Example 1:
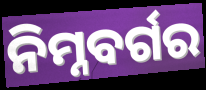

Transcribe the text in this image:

ନିମ୍ନବର୍ଗର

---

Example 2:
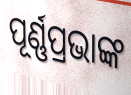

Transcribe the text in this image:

ପୂର୍ଣ୍ଣପ୍ରଭାଙ୍କ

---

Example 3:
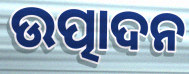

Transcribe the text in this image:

ଉତ୍ପାଦନ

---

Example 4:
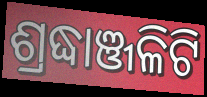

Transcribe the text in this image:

ଶ୍ରଦ୍ଧାଞ୍ଜଳିଟି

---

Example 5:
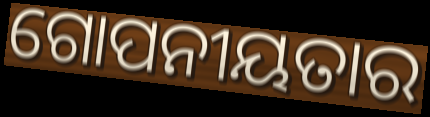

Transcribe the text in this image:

ଗୋପନୀୟତାର